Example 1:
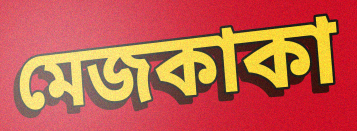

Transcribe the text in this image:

মেজকাকা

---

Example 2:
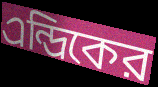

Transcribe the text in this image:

এন্দ্রিকের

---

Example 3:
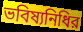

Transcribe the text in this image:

ভবিষ্যনিধির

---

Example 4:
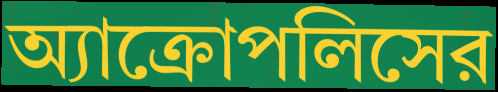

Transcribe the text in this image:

অ্যাক্রোপলিসের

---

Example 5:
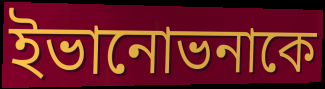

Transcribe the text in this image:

ইভানোভনাকে